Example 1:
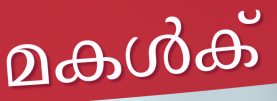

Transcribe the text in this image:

മകൾക്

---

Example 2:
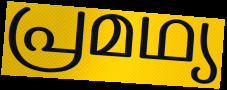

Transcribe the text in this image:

പ്രമഥ്യ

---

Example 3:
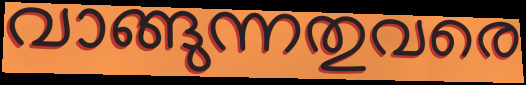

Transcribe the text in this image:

വാങ്ങുന്നതുവരെ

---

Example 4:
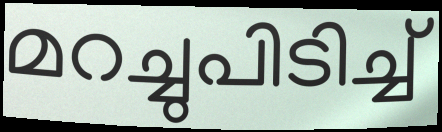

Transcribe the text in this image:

മറച്ചുപിടിച്ച്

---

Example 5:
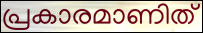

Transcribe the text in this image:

പ്രകാരമാണിത്